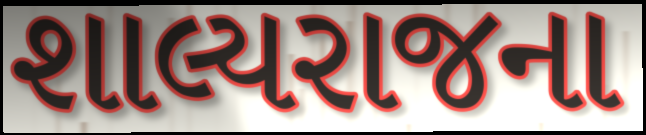
શાલ્યરાજના